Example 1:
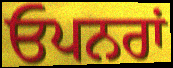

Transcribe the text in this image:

ਓਪਨਰਾਂ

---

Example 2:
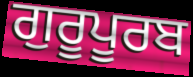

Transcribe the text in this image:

ਗੁਰੂਪੂਰਬ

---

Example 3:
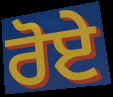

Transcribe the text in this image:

ਰੋਏ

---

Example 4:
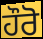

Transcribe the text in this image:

ਹੌਰੋ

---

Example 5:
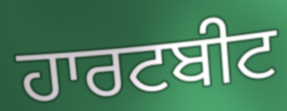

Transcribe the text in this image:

ਹਾਰਟਬੀਟ